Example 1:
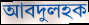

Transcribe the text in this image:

আবদুলহক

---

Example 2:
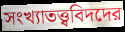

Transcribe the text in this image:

সংখ্যাতত্ত্ববিদদের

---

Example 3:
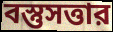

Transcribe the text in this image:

বস্তুসত্তার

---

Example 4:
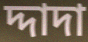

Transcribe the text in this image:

দ্দাদা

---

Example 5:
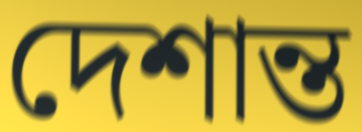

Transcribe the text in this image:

দেশান্ত